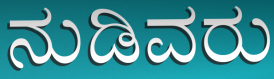
ನುಡಿವರು